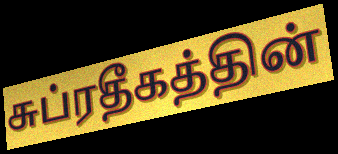
சுப்ரதீகத்தின்